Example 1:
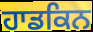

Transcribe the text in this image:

ਹਾਡਕਿਨ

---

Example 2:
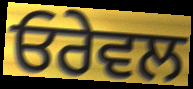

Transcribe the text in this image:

ਓਰੇਵਲ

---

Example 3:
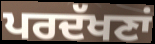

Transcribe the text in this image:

ਪਰਦੱਖਣਾਂ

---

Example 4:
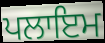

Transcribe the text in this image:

ਪਲਾਇਮ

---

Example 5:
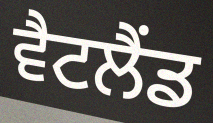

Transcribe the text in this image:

ਵੈਟਲੈਂਡ